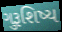
ગુરૂશિષ્ય